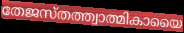
തേജസ്തത്ത്വാത്മികായൈ